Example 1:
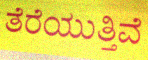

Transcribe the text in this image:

ತೆರೆಯುತ್ತಿವೆ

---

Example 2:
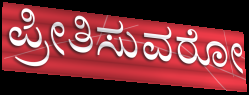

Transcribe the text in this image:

ಪ್ರೀತಿಸುವರೋ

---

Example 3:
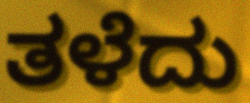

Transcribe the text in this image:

ತಳೆದು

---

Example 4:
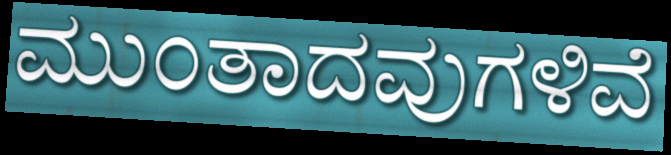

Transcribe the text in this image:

ಮುಂತಾದವುಗಳಿವೆ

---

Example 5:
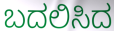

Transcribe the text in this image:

ಬದಲಿಸಿದ